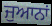
ਜੁਆਨਾਂ